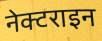
नेक्टराइन